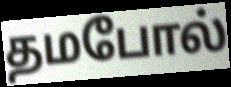
தமபோல்